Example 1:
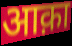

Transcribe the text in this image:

आक़ा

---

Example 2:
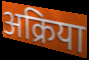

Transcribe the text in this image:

अक्रिया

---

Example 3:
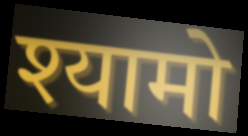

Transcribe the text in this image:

श्यामो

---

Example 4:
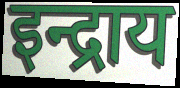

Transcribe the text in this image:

इन्द्राय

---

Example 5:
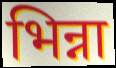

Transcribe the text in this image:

भिन्ना